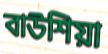
বাউশিয়া